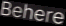
Behere